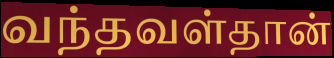
வந்தவள்தான்